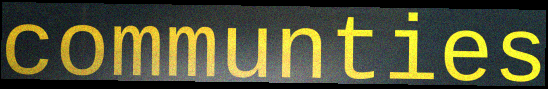
communties